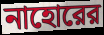
নাহোরের